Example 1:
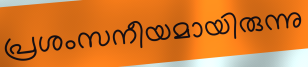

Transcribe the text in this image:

പ്രശംസനീയമായിരുന്നു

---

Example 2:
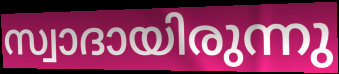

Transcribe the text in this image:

സ്വാദായിരുന്നു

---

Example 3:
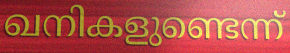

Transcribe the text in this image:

ഖനികളുണ്ടെന്ന്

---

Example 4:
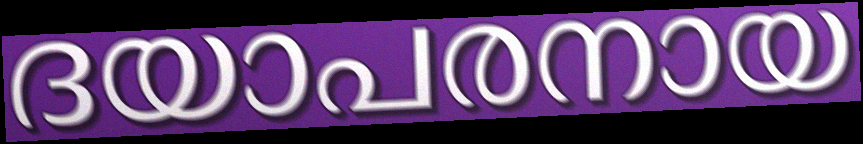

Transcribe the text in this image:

ദയാപരനായ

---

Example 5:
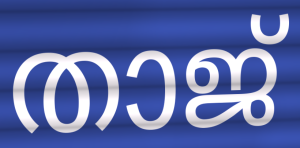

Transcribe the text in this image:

താജ്